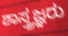
ಶಾಸ್ತ್ರಜ್ಞರು